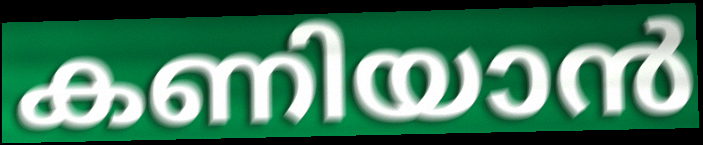
കണിയാൻ